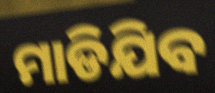
ମାଡିଯିବ